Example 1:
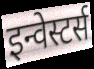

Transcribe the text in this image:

इन्वेस्टर्स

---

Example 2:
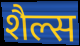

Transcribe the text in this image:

शैल्स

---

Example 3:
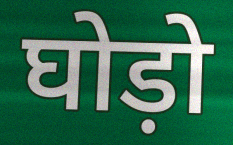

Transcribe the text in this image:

घोड़ो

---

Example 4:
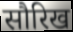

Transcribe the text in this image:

सौरिख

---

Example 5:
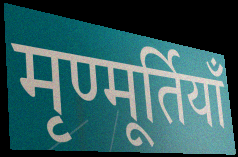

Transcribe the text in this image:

मृण्मूर्तियाँ